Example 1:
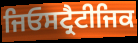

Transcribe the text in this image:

ਜਿਓਸਟ੍ਰੈਟੀਜਿਕ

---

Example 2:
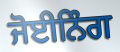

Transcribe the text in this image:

ਜੋਈਨਿੰਗ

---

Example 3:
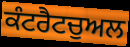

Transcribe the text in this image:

ਕੰਟਰੈਟਚੁਅਲ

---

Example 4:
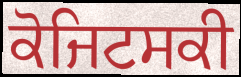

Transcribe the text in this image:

ਕੋਜਿਟਸਕੀ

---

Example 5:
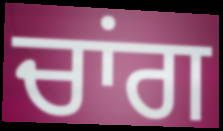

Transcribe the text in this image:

ਚਾਂਗ